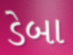
ડેબા